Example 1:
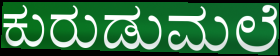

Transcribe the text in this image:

ಕುರುಡುಮಲೆ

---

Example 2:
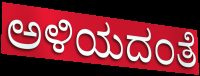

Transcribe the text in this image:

ಅಳಿಯದಂತೆ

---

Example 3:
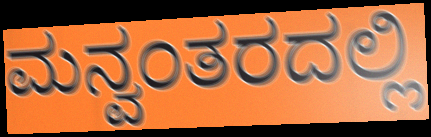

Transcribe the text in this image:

ಮನ್ವಂತರದಲ್ಲಿ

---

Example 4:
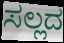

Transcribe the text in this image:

ಸಲ್ಲದ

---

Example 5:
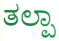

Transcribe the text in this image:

ತಲ್ಪಾ